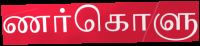
ணர்கொளு